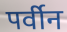
पर्वीन